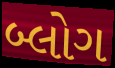
બ્લોગ